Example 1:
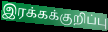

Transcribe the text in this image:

இரக்கக்குறிப்பு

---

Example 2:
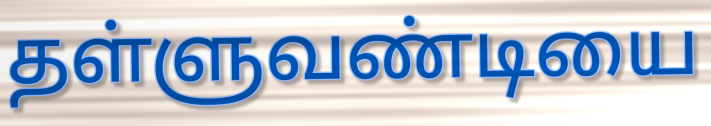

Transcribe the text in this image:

தள்ளுவண்டியை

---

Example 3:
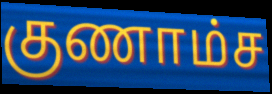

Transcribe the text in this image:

குணாம்ச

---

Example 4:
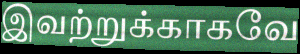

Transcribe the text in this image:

இவற்றுக்காகவே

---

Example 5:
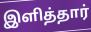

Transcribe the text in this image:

இளித்தார்